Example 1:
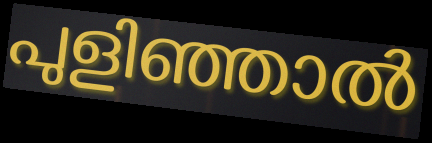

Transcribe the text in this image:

പുളിഞ്ഞാൽ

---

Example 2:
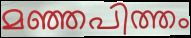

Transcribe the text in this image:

മഞ്ഞപിത്തം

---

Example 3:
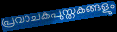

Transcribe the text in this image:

പ്രവാചകപുസ്തകങ്ങളും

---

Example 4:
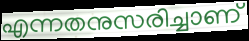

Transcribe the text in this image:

എന്നതനുസരിച്ചാണ്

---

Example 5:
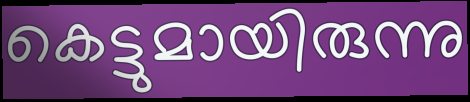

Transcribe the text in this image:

കെട്ടുമായിരുന്നു